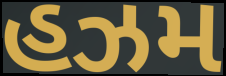
હઝમ